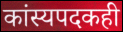
कांस्यपदकही